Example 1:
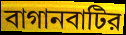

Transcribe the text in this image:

বাগানবাটির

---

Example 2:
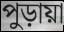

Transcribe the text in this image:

পুড়ায়া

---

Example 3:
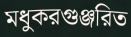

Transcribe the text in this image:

মধুকরগুঞ্জরিত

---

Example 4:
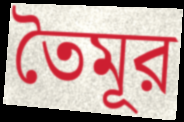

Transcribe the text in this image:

তৈমূর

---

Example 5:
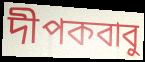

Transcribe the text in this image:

দীপকবাবু